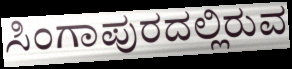
ಸಿಂಗಾಪುರದಲ್ಲಿರುವ